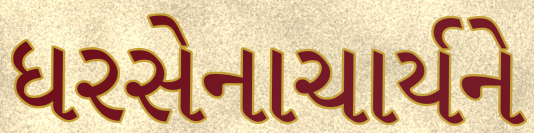
ધરસેનાચાર્યને